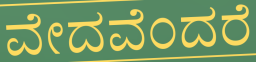
ವೇದವೆಂದರೆ